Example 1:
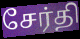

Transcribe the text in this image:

சேர்தி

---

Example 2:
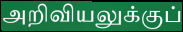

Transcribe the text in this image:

அறிவியலுக்குப்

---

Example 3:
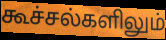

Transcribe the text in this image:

கூச்சல்களிலும்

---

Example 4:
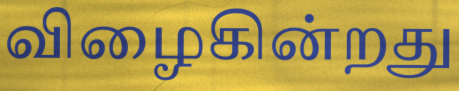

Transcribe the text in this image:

விழைகின்றது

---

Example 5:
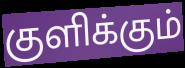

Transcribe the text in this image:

குளிக்கும்